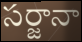
సర్జానా